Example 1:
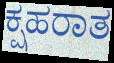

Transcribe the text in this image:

ಕ್ಷಹರಾತ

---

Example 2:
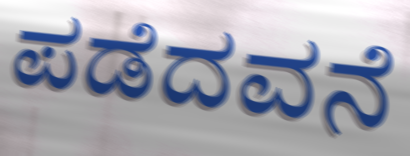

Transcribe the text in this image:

ಪಡೆದವನೆ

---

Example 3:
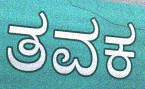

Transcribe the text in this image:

ತವಕ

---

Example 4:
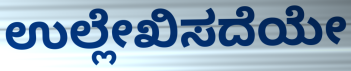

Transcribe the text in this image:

ಉಲ್ಲೇಖಿಸದೆಯೇ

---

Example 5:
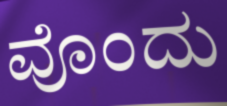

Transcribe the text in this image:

ವೊಂದು